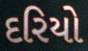
દરિયો